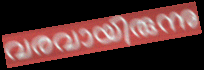
വരവായിരുന്നു